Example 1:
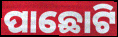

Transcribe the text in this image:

ପାଛୋଟି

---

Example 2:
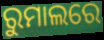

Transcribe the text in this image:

ରୁମାଲରେ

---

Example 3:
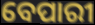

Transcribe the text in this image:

ବେପାରୀ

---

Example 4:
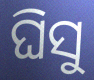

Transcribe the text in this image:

ଘିସୁ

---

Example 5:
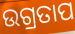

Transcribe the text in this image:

ଉଗ୍ରତାପ